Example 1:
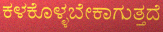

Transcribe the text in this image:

ಕಳಕೊಳ್ಳಬೇಕಾಗುತ್ತದೆ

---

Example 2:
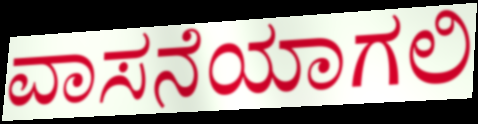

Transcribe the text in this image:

ವಾಸನೆಯಾಗಲಿ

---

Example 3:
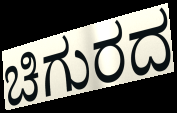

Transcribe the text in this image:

ಚಿಗುರದ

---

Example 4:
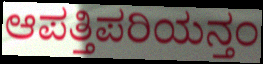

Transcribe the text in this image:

ಆಪತ್ತಿಪರಿಯನ್ತಂ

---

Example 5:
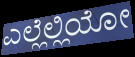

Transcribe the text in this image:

ಎಲ್ಲೆಲ್ಲಿಯೋ